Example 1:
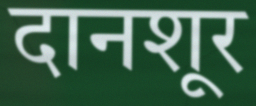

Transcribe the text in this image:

दानशूर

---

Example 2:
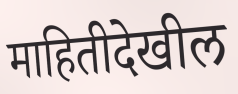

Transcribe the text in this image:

माहितीदेखील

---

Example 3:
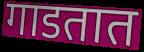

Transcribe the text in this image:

गाडतात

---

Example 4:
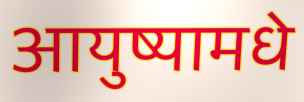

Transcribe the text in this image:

आयुष्यामधे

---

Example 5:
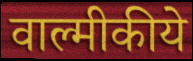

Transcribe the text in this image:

वाल्मीकीये